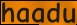
haadu